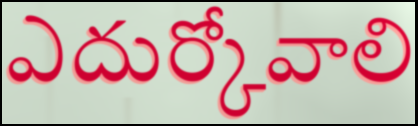
ఎదుర్కోవాలి